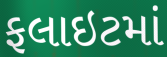
ફલાઇટમાં